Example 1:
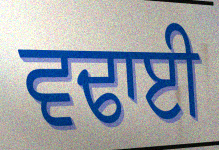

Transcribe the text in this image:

ਵਢਾਈ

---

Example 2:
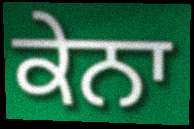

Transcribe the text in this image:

ਕੇਨਾ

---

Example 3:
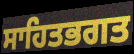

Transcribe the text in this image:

ਸਾਹਿਤਭਗਤ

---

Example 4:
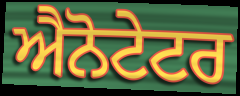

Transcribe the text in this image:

ਐਨੋਟੇਟਰ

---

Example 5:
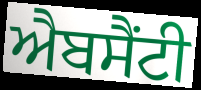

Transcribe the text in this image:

ਐਬਸੈਂਟੀ